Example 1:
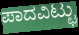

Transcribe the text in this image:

ಪಾದವಿಟ್ಟು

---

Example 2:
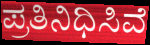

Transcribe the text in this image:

ಪ್ರತಿನಿಧಿಸಿವೆ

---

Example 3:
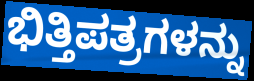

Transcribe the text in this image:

ಭಿತ್ತಿಪತ್ರಗಳನ್ನು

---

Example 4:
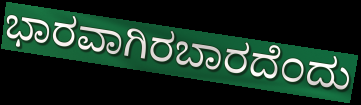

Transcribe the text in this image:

ಭಾರವಾಗಿರಬಾರದೆಂದು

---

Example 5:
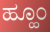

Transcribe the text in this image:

ಹ್ಹೂಂ